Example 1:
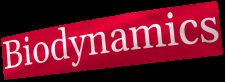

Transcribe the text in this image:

Biodynamics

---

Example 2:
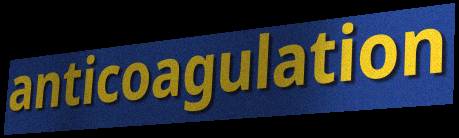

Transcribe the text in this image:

anticoagulation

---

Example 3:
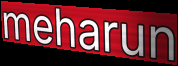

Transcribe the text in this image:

meharun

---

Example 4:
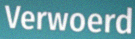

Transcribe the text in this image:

Verwoerd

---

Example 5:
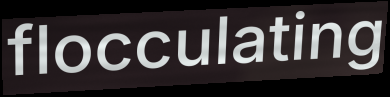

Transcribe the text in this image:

flocculating